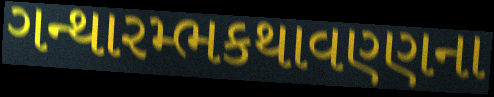
ગન્થારમ્ભકથાવણ્ણના